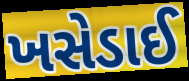
ખસેડાઈ